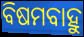
ବିଷମବାହୁ